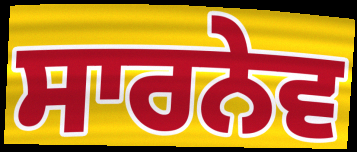
ਸਾਰਨੇਵ